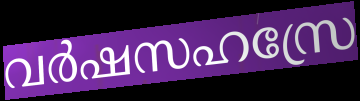
വർഷസഹസ്രേ